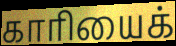
காரியைக்